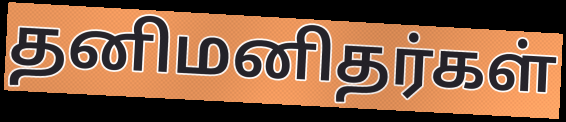
தனிமனிதர்கள்